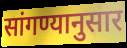
सांगण्यानुसार